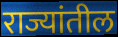
राज्यांतील